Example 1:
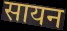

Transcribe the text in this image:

सायन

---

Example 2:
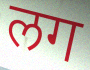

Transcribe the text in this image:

लग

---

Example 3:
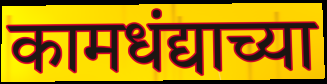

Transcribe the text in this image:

कामधंद्याच्या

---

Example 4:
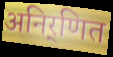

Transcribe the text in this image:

अनिर्णित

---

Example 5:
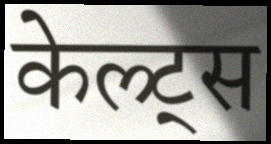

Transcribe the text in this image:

केल्ट्स